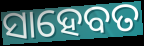
ସାହେବତ